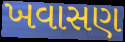
ખવાસણ